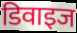
डिवाइज